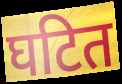
घटित